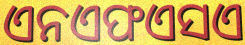
ଏନଏଫଏସଏ